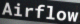
Airflow